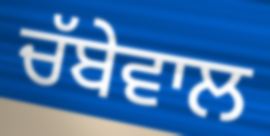
ਚੱਬੇਵਾਲ